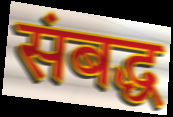
संबद्ध